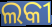
ଲକୀ